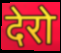
देरो